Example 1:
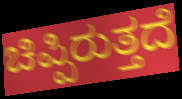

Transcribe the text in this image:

ಚಿಪ್ಪಿರುತ್ತದೆ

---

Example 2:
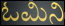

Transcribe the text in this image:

ಓಮಿನಿ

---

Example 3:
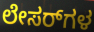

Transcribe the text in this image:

ಲೇಸರ್‌ಗಳ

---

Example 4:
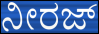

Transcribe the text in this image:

ನೀರಜ್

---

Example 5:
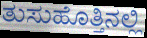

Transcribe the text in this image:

ತುಸುಹೊತ್ತಿನಲ್ಲಿ